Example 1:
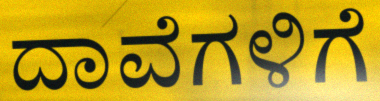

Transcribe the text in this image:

ದಾವೆಗಳಿಗೆ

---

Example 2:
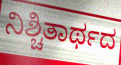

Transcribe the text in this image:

ನಿಶ್ಚಿತಾರ್ಥದ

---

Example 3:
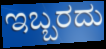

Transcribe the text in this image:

ಇಬ್ಬರದು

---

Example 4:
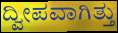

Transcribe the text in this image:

ದ್ವೀಪವಾಗಿತ್ತು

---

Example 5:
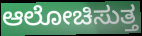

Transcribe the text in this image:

ಆಲೋಚಿಸುತ್ತ